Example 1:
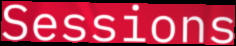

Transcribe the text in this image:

Sessions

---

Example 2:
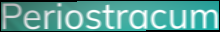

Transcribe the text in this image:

Periostracum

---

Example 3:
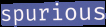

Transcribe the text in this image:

spurious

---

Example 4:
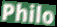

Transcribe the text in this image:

Philo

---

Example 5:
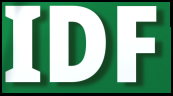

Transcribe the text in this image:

IDF